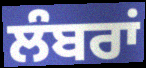
ਲੰਬਰਾਂ